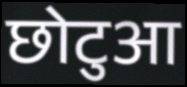
छोटुआ